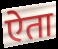
ऐता